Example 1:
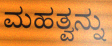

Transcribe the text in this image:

ಮಹತ್ವನ್ನು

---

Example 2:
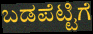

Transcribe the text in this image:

ಬಡಪೆಟ್ಟಿಗೆ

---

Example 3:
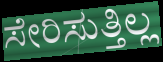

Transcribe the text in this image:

ಸೇರಿಸುತ್ತಿಲ್ಲ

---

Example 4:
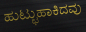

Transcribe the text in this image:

ಹುಟ್ಟುಹಾಕಿದವು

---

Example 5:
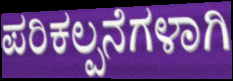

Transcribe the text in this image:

ಪರಿಕಲ್ಪನೆಗಳಾಗಿ